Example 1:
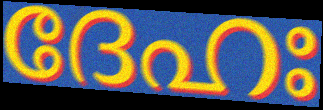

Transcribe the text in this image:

ദേഹഃ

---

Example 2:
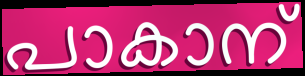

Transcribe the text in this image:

പാകാന്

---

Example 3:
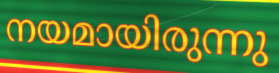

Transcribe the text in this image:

നയമായിരുന്നു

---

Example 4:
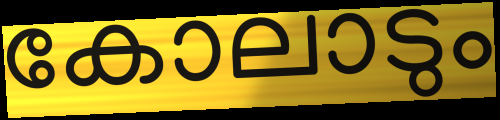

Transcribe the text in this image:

കോലാടും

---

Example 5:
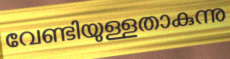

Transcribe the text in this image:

വേണ്ടിയുള്ളതാകുന്നു